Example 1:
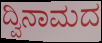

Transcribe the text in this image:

ದ್ವಿನಾಮದ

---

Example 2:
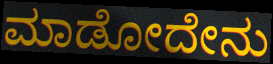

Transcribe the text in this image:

ಮಾಡೋದೇನು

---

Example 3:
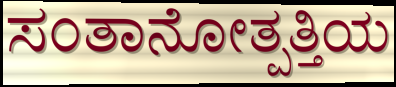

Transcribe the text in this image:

ಸಂತಾನೋತ್ಪತ್ತಿಯ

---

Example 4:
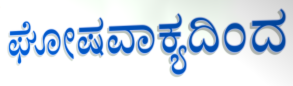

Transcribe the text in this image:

ಘೋಷವಾಕ್ಯದಿಂದ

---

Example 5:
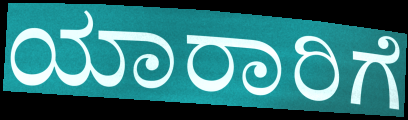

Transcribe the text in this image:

ಯಾರಾರಿಗೆ